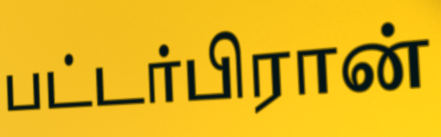
பட்டர்பிரான்